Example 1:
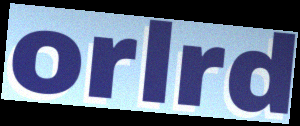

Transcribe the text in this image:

orlrd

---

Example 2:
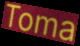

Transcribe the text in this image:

Toma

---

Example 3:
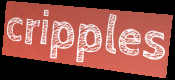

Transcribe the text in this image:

cripples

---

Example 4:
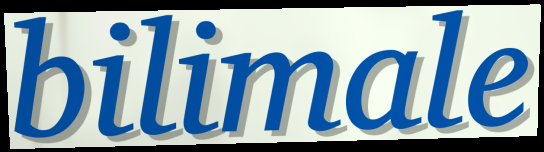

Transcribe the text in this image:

bilimale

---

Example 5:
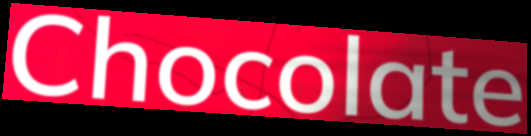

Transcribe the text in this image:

Chocolate